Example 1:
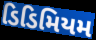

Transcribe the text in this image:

ડિડિમિયમ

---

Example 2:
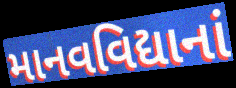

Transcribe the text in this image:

માનવવિદ્યાનાં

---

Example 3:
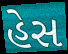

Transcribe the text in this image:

હેસ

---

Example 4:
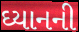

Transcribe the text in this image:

ઘ્યાનની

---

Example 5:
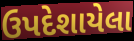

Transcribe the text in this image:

ઉપદેશાયેલા